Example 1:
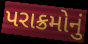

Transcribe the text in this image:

પરાક્રમોનું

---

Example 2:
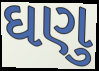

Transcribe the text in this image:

ઘણુ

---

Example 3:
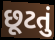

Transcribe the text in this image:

છૂટતું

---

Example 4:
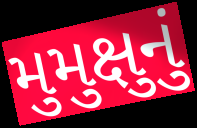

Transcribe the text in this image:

મુમુક્ષુનું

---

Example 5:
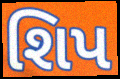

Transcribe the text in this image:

શિપ